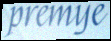
premye